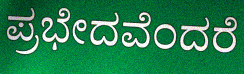
ಪ್ರಭೇದವೆಂದರೆ